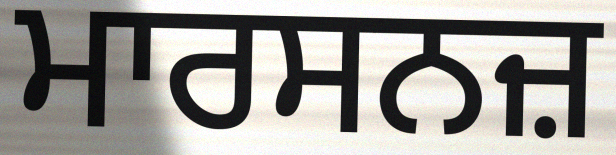
ਮਾਰਸਨਜ਼